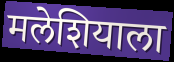
मलेशियाला